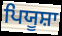
ਪਿਯੂਸ਼ਾ